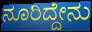
ನೂರಿದ್ದೇನು